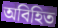
অবিহিত